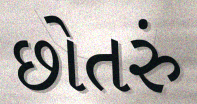
છોતરું